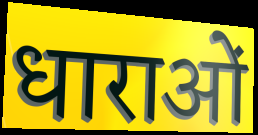
धाराओं